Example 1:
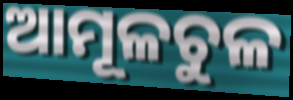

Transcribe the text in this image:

ଆମୂଳଚୁଳ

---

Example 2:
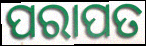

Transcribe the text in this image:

ପରାପତ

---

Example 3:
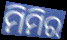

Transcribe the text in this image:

ମିମିର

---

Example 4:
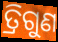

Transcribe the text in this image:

ତ୍ରିଗୁଣ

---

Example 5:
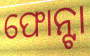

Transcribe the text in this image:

ଫୋନ୍ଟା